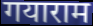
गयाराम